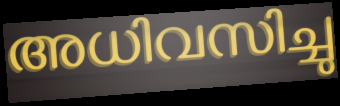
അധിവസിച്ചു